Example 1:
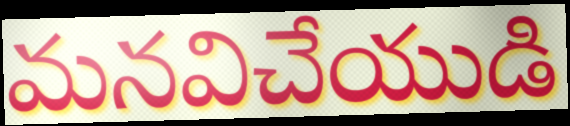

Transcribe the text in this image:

మనవిచేయుడి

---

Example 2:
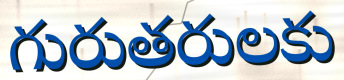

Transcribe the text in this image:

గురుతరులకు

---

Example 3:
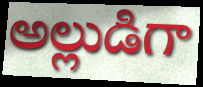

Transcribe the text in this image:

అల్లుడిగా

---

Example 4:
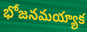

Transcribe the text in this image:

భోజనమయ్యాక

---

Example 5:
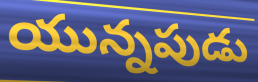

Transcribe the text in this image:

యున్నపుడు